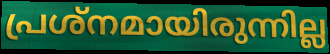
പ്രശ്നമായിരുന്നില്ല